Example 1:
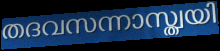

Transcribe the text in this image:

തദവസന്നാസ്ത്വയി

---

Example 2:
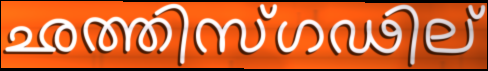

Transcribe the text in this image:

ഛത്തിസ്ഗഢില്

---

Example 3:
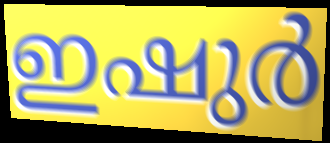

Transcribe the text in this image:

ഇഷുർ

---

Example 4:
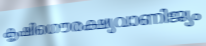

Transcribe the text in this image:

കൃഷിഗൌരക്ഷ്യവാണിജ്യം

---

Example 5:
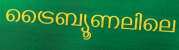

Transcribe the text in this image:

ട്രൈബ്യൂണലിലെ